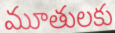
మూతులకు